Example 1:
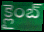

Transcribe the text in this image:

క్లైంబ్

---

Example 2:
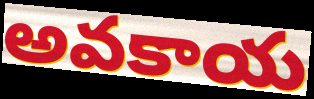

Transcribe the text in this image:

అవకాయ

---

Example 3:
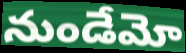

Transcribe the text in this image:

నుండేమో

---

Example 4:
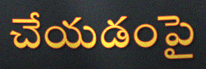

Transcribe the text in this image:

చేయడంపై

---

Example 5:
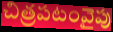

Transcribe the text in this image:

చిత్రపటంవైపు